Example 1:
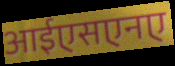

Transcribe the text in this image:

आईएसएनए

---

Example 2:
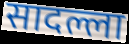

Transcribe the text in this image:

सादल्ला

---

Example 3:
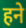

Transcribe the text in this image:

हने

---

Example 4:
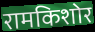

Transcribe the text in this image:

रामकिशोर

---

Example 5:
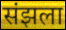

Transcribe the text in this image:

संझला